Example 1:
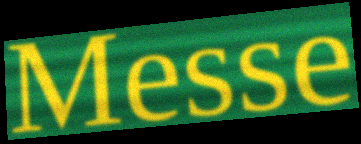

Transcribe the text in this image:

Messe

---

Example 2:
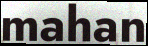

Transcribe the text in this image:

mahan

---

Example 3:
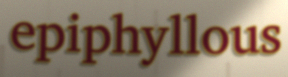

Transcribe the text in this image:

epiphyllous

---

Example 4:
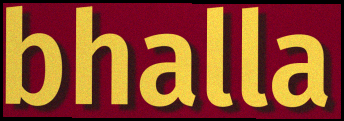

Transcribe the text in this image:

bhalla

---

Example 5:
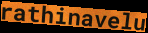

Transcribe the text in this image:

rathinavelu